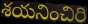
శయనించిరి